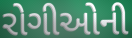
રોગીઓની